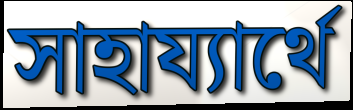
সাহায্যাৰ্থে